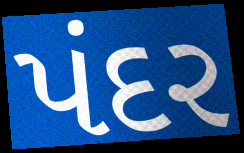
પંદર